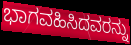
ಭಾಗವಹಿಸಿದವರನ್ನು